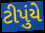
ટીપુંયે